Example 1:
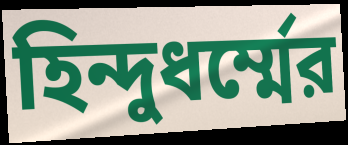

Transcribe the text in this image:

হিন্দুধর্ম্মের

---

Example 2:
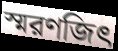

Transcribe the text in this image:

স্মরণজিৎ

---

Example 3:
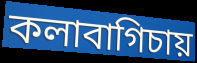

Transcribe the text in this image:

কলাবাগিচায়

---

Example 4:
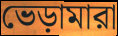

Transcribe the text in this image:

ভেড়ামারা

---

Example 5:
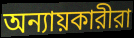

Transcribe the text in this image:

অন্যায়কারীরা